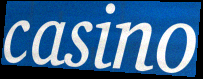
casino